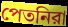
পেতনিরা